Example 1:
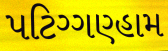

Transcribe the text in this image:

પટિગ્ગણ્હામ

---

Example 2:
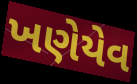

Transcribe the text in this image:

ખણેયેવ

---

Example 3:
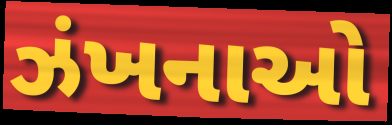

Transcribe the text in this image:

ઝંખનાઓ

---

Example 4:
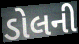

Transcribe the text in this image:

ડોલની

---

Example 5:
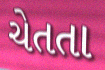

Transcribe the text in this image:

ચેતતા